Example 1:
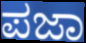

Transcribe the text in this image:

ಪಜಾ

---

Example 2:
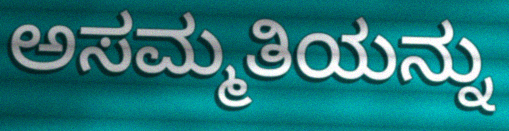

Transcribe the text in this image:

ಅಸಮ್ಮತಿಯನ್ನು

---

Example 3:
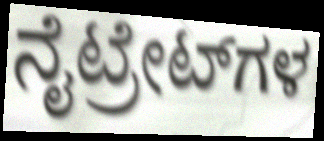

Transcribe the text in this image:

ನೈಟ್ರೇಟ್‌ಗಳ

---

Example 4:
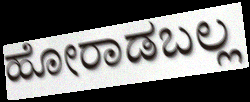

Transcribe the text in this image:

ಹೋರಾಡಬಲ್ಲ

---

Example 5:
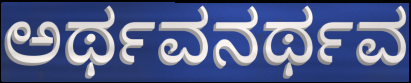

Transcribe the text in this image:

ಅರ್ಥವನರ್ಥವ